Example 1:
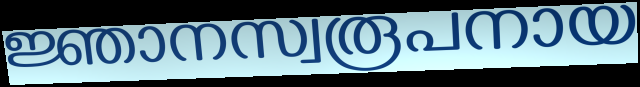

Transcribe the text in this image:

ജ്ഞാനസ്വരൂപനായ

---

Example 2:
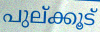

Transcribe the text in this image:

പുല്ക്കൂട്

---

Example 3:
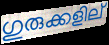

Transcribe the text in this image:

ഗുരുക്കളില്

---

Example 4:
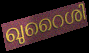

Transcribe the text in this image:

ഖുറൈശി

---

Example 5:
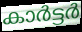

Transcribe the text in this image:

കാർട്ടർ